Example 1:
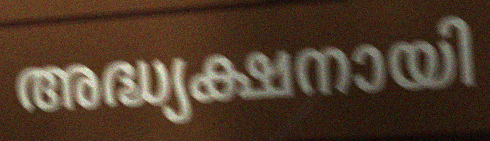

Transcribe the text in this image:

അദ്ധ്യക്ഷനായി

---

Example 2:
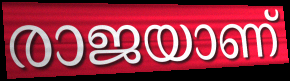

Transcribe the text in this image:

രാജയാണ്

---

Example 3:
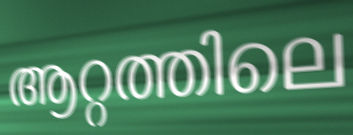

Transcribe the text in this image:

ആറ്റത്തിലെ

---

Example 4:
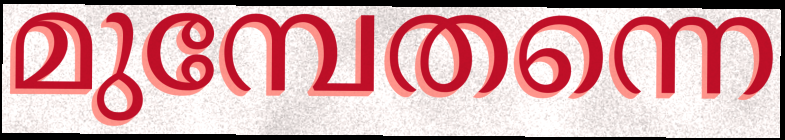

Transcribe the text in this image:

മുമ്പേതന്നെ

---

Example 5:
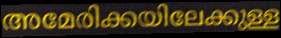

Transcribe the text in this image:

അമേരിക്കയിലേക്കുള്ള